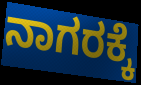
ನಾಗರಕ್ಕೆ